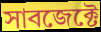
সাবজেক্টে